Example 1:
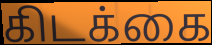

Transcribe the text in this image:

கிடக்கை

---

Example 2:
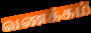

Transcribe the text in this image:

வணக்கம்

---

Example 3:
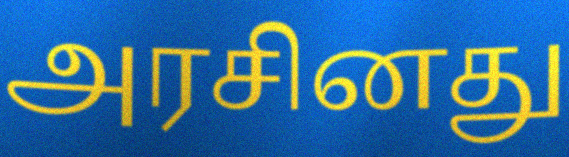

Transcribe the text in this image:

அரசினது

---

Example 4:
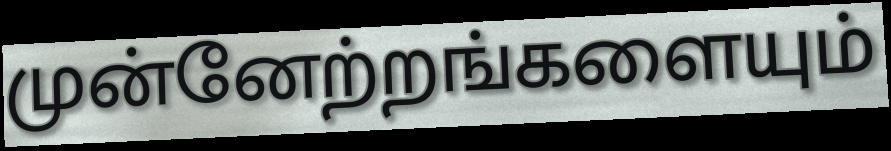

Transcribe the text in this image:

முன்னேற்றங்களையும்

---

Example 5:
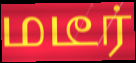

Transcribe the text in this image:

மடீர்